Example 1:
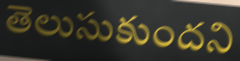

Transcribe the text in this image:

తెలుసుకుందని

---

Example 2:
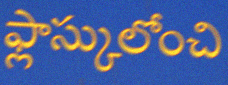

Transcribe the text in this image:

ఫ్లాస్కులోంచి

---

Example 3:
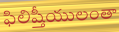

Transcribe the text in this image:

ఫిలిష్తీయులంతా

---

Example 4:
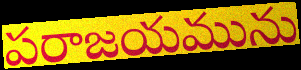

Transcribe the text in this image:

పరాజయమును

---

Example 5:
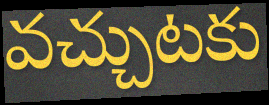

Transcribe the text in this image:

వచ్చుటకు